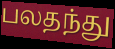
பலதந்து